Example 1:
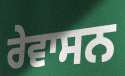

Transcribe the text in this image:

ਰੇਵਾਸਨ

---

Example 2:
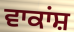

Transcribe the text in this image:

ਵਾਕਾਂਸ਼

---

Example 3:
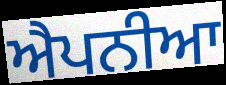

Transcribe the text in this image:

ਐਪਨੀਆ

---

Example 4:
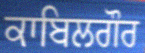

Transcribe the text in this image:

ਕਾਬਿਲਗੌਰ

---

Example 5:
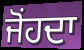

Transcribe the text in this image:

ਜੋਂਹਦਾ